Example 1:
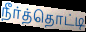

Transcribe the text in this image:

நீர்த்தொட்டி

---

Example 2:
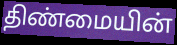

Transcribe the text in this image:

திண்மையின்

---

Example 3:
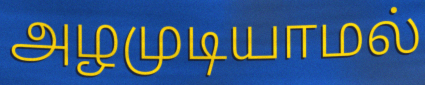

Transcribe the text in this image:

அழமுடியாமல்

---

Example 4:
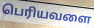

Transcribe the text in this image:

பெரியவளை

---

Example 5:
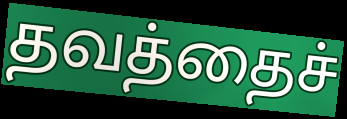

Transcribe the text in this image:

தவத்தைச்